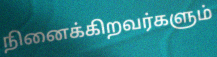
நினைக்கிறவர்களும்